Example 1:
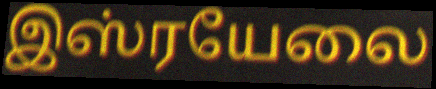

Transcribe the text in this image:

இஸ்ரயேலை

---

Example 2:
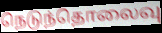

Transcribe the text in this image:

நெடுந்தொலைவு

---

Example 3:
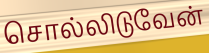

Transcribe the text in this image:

சொல்லிடுவேன்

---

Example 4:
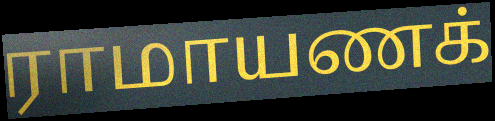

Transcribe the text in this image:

ராமாயணக்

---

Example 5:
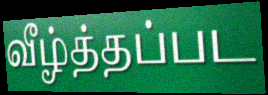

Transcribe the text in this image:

வீழ்த்தப்பட